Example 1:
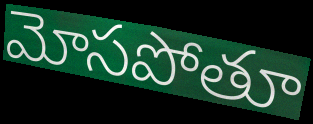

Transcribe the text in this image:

మోసపోతూ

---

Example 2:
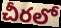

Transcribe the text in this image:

చీరలో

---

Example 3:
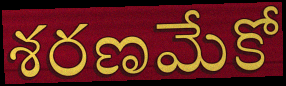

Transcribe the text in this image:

శరణమేకో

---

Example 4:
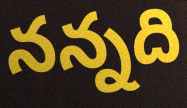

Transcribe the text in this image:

నన్నది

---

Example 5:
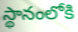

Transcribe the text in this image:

స్థానంలోకి